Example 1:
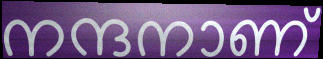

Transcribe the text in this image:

നന്ദനാണ്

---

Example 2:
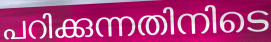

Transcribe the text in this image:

പറിക്കുന്നതിനിടെ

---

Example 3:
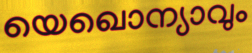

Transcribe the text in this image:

യെഖൊന്യാവും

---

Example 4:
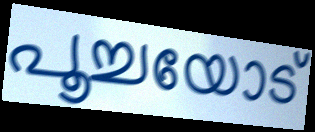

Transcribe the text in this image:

പൂച്ചയോട്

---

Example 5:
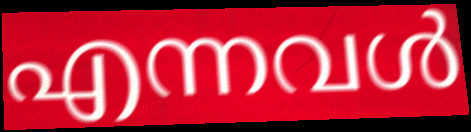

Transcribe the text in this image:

എന്നവൾ